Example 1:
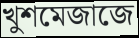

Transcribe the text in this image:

খুশমেজাজে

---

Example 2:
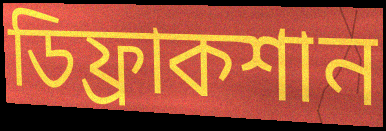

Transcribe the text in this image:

ডিফ্রাকশান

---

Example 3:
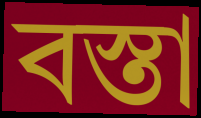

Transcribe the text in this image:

বস্তা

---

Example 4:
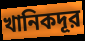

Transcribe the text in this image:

খানিকদূর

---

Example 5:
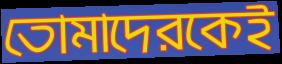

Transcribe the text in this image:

তোমাদেরকেই